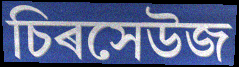
চিৰসেউজ